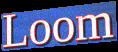
Loom